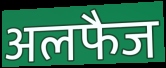
अलफैज